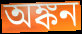
অঙ্কন